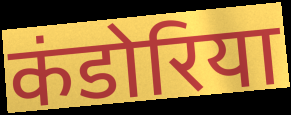
कंडोरिया